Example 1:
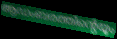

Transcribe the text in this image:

ആഡംബരത്തിന്റെയും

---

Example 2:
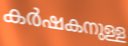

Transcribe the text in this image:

കർഷകനുള്ള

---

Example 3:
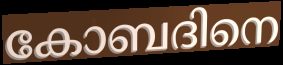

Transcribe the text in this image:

കോബദിനെ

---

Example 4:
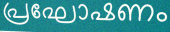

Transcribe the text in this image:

പ്രഘോഷണം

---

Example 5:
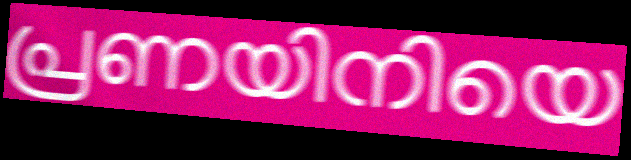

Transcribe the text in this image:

പ്രണയിനിയെ